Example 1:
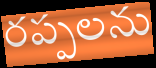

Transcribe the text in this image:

రప్పలను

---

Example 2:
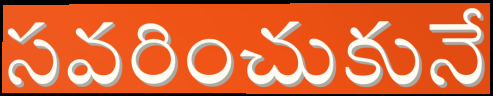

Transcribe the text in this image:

సవరించుకునే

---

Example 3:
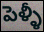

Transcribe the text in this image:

పెళ్ళీ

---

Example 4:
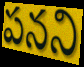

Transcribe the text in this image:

పనని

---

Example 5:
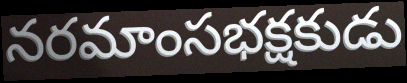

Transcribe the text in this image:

నరమాంసభక్షకుడు